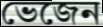
ভেজেন